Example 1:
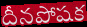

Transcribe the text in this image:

దీనపోషక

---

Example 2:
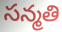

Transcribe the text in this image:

సన్మతి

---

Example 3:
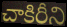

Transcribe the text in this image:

చాకిరీని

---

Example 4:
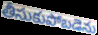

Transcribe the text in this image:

తీసుకుపోబడెను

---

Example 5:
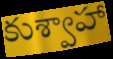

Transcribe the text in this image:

కుశ్వాహా